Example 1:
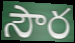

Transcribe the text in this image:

సౌర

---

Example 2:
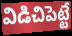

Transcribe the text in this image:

విడిచిపెట్టే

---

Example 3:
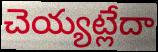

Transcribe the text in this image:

చెయ్యట్లేదా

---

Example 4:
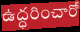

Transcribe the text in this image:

ఉద్ధరించారో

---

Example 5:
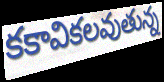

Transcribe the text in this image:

కకావికలవుతున్న